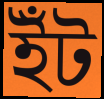
ইঁট